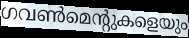
ഗവൺമെന്റുകളെയും